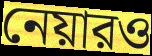
নেয়ারও